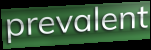
prevalent